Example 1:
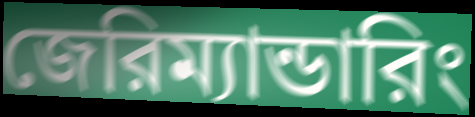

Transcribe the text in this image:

জেরিম্যান্ডারিং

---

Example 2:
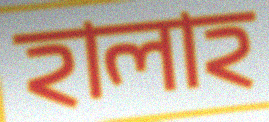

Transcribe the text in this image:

হালাহ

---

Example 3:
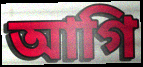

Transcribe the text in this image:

আগি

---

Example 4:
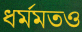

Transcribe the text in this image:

ধর্মমতও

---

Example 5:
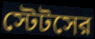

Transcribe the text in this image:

স্টেটসের